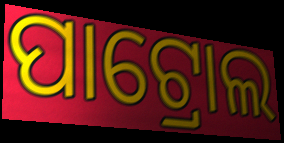
ପାଟ୍ରୋଲ